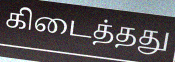
கிடைத்தது